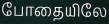
போதையிலே